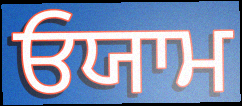
ਓਯਾਮ